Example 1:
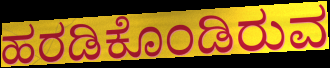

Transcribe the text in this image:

ಹರಡಿಕೊಂಡಿರುವ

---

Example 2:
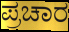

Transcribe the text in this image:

ಪ್ರಚಾರ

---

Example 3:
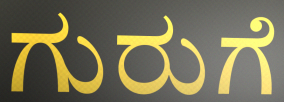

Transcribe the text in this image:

ಗುರುಗೆ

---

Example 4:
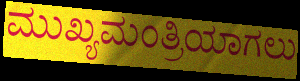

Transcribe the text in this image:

ಮುಖ್ಯಮಂತ್ರಿಯಾಗಲು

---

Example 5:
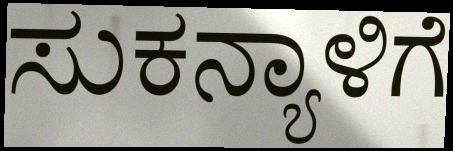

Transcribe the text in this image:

ಸುಕನ್ಯಾಳಿಗೆ